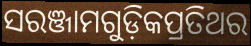
ସରଞ୍ଜାମଗୁଡ଼ିକପ୍ରତିଥର